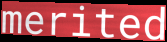
merited